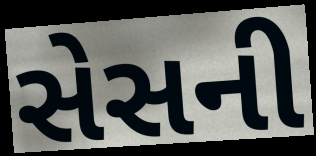
સેસની